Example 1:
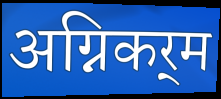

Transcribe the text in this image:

अग्निकर्म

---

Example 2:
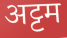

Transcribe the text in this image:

अट्टम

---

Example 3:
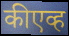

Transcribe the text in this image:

कीएव्ह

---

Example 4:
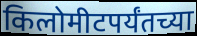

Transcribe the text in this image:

किलोमीटपर्यंतच्या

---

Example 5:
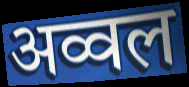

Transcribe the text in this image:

अव्वल